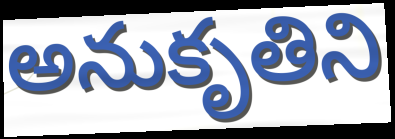
అనుకృతిని